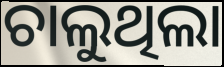
ଚାଲୁଥିଲା